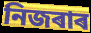
নিজৰাৰ